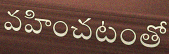
వహించటంతో